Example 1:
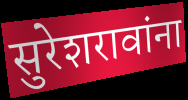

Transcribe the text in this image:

सुरेशरावांना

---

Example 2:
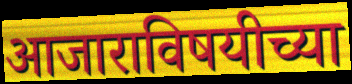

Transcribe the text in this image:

आजाराविषयीच्या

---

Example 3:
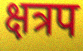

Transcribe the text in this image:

क्षत्रप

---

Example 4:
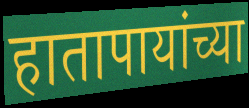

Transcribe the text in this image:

हातापायांच्या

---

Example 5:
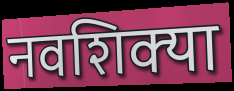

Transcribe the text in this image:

नवशिक्या